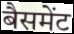
बैसमेंट